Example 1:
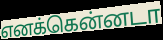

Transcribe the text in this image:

எனக்கென்னடா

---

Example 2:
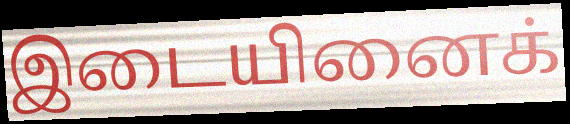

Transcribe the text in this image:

இடையினைக்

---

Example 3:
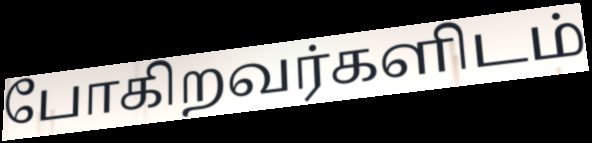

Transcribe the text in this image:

போகிறவர்களிடம்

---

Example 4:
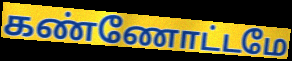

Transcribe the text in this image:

கண்ணோட்டமே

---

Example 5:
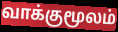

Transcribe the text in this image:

வாக்குமூலம்